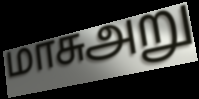
மாசுஅறு